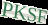
PKSF